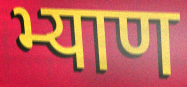
भ्याण